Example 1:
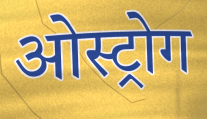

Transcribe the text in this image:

ओस्ट्रोग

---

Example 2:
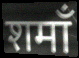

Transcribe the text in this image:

शमाँ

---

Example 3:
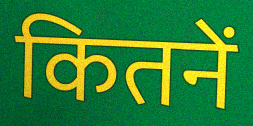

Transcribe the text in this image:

कितनें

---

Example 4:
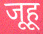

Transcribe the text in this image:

जूहू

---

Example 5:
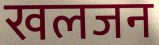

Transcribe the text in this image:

खलजन